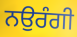
ਨਉਰੰਗੀ